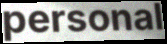
personal